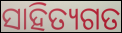
ସାହିତ୍ୟଗତ